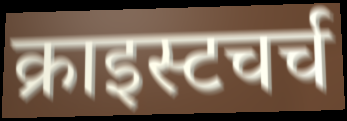
क्राइस्टचर्च